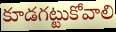
కూడగట్టుకోవాలి